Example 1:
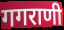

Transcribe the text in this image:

गगराणी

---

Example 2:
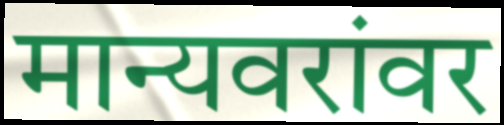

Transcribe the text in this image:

मान्यवरांवर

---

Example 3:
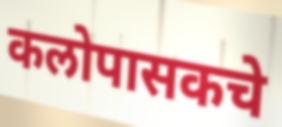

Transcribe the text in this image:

कलोपासकचे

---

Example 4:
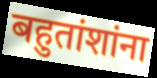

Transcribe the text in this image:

बहुतांशांना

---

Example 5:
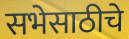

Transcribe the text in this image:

सभेसाठीचे